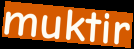
muktir